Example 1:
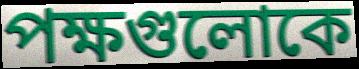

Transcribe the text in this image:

পক্ষগুলোকে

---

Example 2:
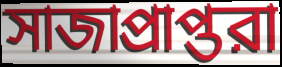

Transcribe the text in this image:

সাজাপ্রাপ্তরা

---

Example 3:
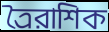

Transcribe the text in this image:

ত্রৈরাশিক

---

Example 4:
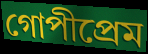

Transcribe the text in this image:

গোপীপ্রেম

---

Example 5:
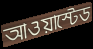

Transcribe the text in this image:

আওয়াস্টেড